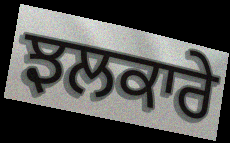
ਝਲਕਾਰੇ